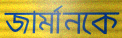
জার্মানকে